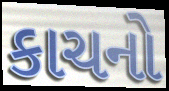
કાચનો